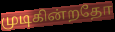
முடிகின்றதோ